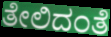
ತೇಲಿದಂತೆ